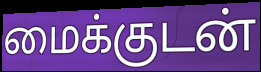
மைக்குடன்